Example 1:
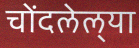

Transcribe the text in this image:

चोंदलेल्या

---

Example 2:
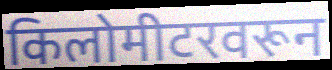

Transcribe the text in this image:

किलोमीटरवरून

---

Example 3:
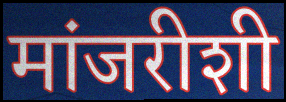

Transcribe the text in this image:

मांजरीशी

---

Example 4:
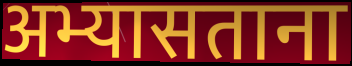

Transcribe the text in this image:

अभ्यासताना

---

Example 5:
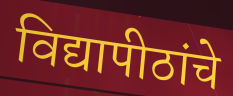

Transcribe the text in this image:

विद्यापीठांचे